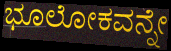
ಭೂಲೋಕವನ್ನೇ